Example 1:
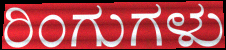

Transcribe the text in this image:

ರಿಂಗುಗಳು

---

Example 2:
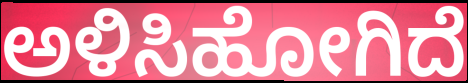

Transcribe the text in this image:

ಅಳಿಸಿಹೋಗಿದೆ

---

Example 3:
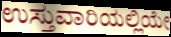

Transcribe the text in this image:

ಉಸ್ತುವಾರಿಯಲ್ಲಿಯೇ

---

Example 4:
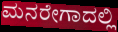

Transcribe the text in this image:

ಮನರೇಗಾದಲ್ಲಿ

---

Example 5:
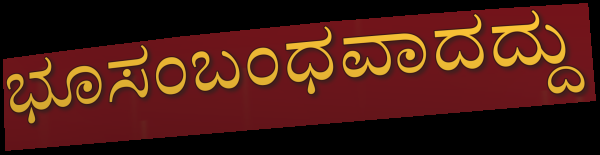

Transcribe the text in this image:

ಭೂಸಂಬಂಧವಾದದ್ದು